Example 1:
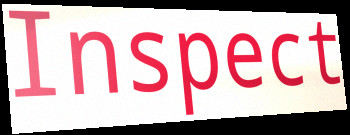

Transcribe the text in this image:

Inspect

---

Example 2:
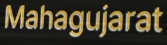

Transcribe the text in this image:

Mahagujarat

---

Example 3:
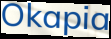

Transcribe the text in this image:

Okapia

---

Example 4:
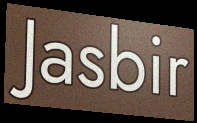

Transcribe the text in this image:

Jasbir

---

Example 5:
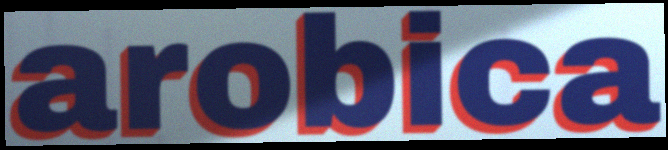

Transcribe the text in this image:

arobica